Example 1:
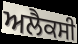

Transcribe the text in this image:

ਅਲੈਕਸੀ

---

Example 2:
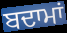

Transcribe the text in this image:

ਬਦਾਮਾਂ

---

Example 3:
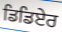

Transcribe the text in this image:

ਡਿਡਿਏਰ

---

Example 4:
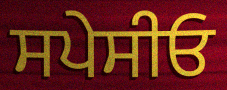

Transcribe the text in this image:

ਸਪੇਸੀਓ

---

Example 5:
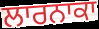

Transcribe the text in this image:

ਲਾਰਨਾਕਾ